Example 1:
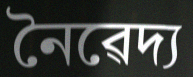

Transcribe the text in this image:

নৈৱেদ্য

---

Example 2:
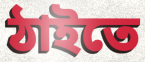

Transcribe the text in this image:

ঠাইতে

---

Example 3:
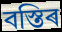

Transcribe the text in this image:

বস্তিৰ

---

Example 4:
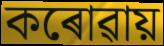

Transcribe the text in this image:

কৰোৱায়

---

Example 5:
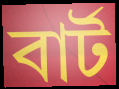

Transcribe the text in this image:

বাৰ্ট